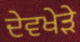
ਦੇਵਖੇੜੇ